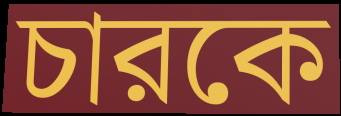
চারকে